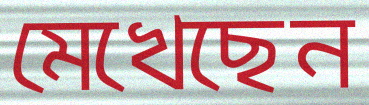
মেখেছেন